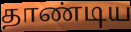
தாண்டிய